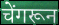
चेंगरून